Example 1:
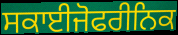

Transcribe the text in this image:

ਸਕਾਈਜੋਫਰੀਨਿਕ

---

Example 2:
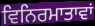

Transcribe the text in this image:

ਵਿਨਿਰਮਾਤਾਵਾਂ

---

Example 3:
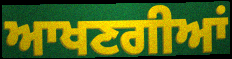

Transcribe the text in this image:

ਆਖਣਗੀਆਂ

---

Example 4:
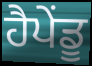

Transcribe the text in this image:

ਹੈਪੇਂਡੂ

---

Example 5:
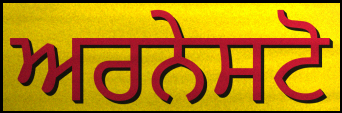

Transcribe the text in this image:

ਅਰਨੇਸਟੋ